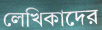
লেখিকাদের